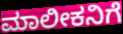
ಮಾಲೀಕನಿಗೆ